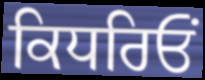
ਕਿਧਰਿਓਂ